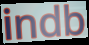
indb